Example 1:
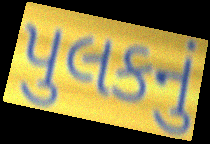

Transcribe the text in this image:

પુલકનું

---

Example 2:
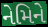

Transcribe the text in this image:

નેમિને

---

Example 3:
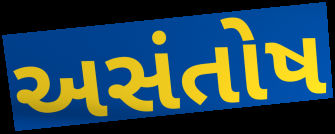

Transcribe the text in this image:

અસંતોષ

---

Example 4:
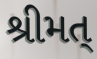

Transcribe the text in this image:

શ્રીમત્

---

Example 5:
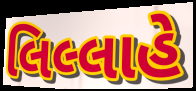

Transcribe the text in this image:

લિલ્લાહે